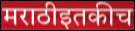
मराठीइतकीच